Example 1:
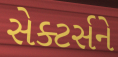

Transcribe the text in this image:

સેક્ટર્સને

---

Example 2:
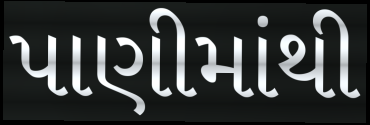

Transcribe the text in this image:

પાણીમાંથી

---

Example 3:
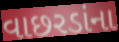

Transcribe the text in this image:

વાછરડાંના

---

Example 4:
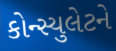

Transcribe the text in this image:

કોન્સ્યુલેટને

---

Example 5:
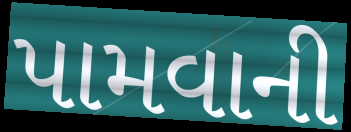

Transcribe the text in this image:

પામવાની